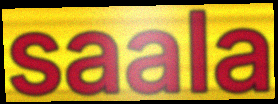
saala